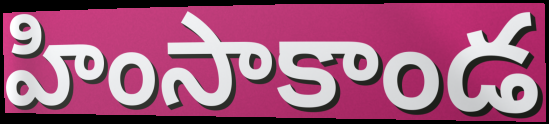
హింసాకాండ